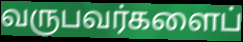
வருபவர்களைப்